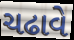
ચઢાવે